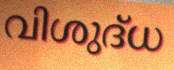
വിശുദ്‌ധ